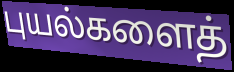
புயல்களைத்